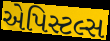
એપિસ્ટલ્સ